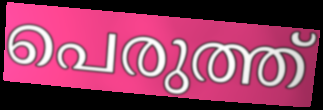
പെരുത്ത്